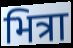
भित्रा